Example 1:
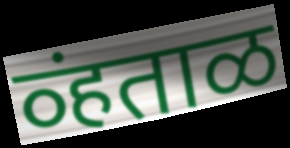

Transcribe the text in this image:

व्हंताळ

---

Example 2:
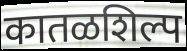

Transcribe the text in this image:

कातळशिल्प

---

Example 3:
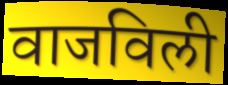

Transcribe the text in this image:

वाजविली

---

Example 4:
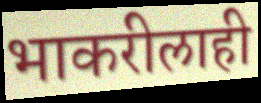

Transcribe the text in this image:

भाकरीलाही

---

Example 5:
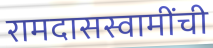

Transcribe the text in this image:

रामदासस्वामींची